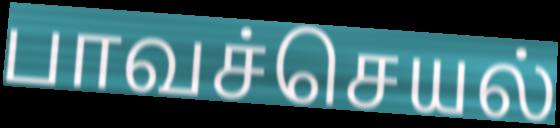
பாவச்செயல்